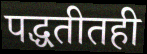
पद्धतीतही